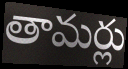
తామర్లు